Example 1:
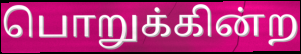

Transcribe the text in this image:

பொறுக்கின்ற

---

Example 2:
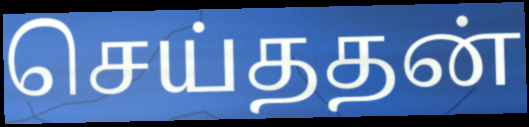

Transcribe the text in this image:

செய்ததன்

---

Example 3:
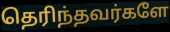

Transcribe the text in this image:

தெரிந்தவர்களே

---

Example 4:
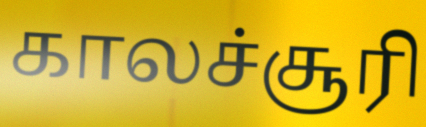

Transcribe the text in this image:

காலச்சூரி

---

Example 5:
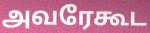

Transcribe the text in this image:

அவரேகூட